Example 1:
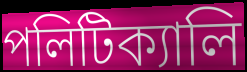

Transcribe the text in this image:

পলিটিক্যালি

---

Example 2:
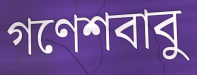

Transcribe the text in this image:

গণেশবাবু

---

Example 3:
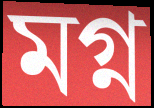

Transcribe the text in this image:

মগ্ন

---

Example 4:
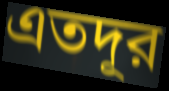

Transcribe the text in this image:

এতদূর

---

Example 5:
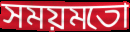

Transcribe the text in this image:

সময়মতো